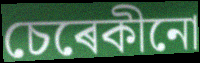
চেৰেকীনো